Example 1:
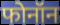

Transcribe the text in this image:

फोनॉन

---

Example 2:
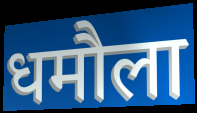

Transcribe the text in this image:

धमौला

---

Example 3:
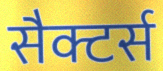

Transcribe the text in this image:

सैक्टर्स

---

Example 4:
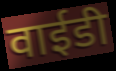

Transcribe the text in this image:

वाईडी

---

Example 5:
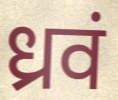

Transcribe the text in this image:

ध्रवं